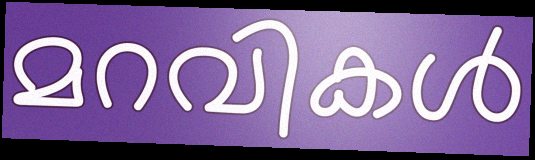
മറവികൾ